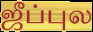
ஜீப்புல